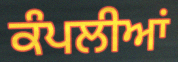
ਕੰਪਲੀਆਂ